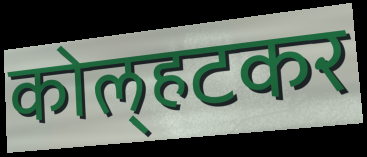
कोल्हटकर